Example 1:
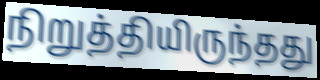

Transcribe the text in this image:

நிறுத்தியிருந்தது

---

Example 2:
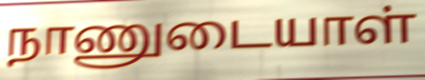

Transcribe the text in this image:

நாணுடையாள்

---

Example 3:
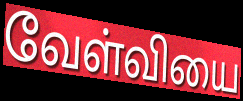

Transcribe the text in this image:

வேள்வியை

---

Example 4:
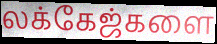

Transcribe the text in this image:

லக்கேஜ்களை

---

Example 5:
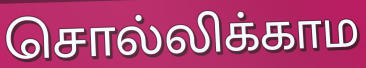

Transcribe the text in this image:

சொல்லிக்காம